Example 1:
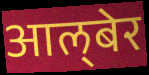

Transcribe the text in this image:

आल्बेर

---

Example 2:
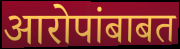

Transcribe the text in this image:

आरोपांबाबत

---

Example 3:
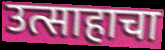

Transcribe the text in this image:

उत्साहाचा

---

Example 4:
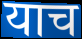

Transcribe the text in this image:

याच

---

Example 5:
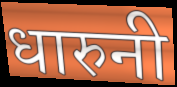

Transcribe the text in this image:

धारुनी